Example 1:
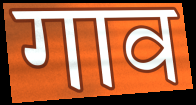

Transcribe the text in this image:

गाव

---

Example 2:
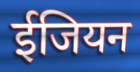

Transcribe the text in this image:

ईजियन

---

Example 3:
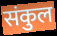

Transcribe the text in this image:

संकुल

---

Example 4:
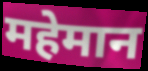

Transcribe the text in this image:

महेमान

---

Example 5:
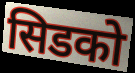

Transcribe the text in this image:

सिडको